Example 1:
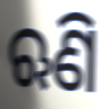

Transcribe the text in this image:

ଋଣି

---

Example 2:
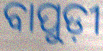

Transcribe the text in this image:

ବାପୁଡ଼ୀ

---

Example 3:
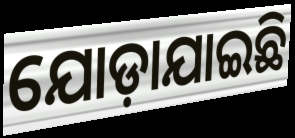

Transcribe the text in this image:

ଯୋଡ଼ାଯାଇଛି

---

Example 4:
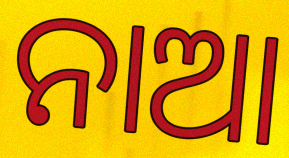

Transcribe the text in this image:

ନାଆ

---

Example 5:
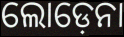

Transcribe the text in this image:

ଲୋଡ଼େନା